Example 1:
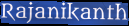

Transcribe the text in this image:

Rajanikanth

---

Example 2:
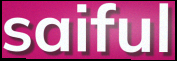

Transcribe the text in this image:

saiful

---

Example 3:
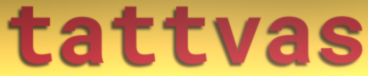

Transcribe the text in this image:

tattvas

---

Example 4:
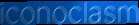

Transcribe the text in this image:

iconoclasm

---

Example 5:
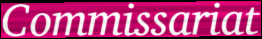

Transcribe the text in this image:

Commissariat